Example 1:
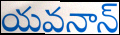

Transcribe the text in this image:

యవనాన్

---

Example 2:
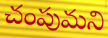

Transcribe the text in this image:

చంపుమని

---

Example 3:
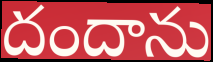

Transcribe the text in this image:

దందాను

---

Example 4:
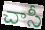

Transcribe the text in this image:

చాసీ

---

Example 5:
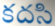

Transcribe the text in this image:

కదసి